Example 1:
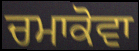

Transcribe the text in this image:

ਚਮਾਕੋਵਾ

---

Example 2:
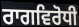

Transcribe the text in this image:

ਰਾਗਵਿਰੋਧੀ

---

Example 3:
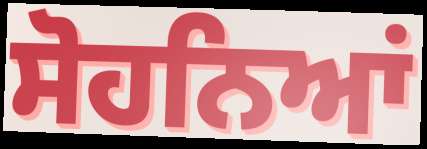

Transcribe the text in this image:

ਸੋਹਨਿਆਂ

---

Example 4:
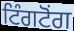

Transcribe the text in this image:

ਟਿੰਗਟੋਂਗ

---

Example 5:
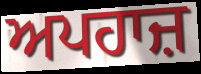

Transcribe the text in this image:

ਅਪਹਾਜ਼